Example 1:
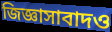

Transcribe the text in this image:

জিজ্ঞাসাবাদও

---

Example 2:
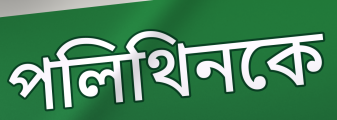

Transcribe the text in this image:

পলিথিনকে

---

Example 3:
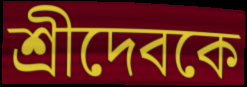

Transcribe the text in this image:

শ্রীদেবকে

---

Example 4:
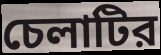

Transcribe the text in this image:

চেলাটির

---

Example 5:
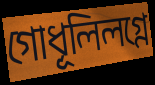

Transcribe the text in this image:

গোধূলিলগ্নে